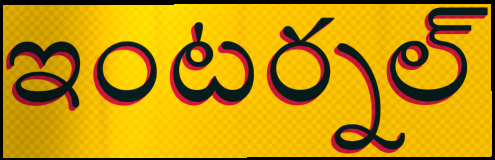
ఇంటర్నల్